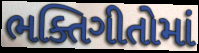
ભક્તિગીતોમાં